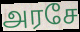
அரசே